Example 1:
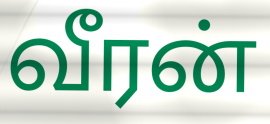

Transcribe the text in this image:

வீரன்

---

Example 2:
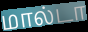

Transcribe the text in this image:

மால்டா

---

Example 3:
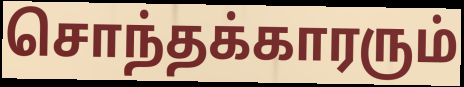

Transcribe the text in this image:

சொந்தக்காரரும்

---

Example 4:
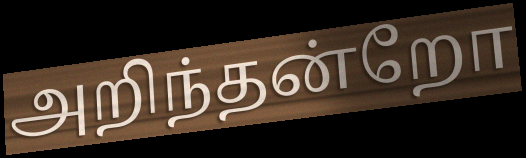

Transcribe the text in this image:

அறிந்தன்றோ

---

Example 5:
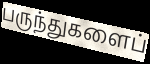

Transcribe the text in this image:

பருந்துகளைப்